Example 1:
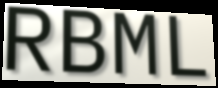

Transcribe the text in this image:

RBML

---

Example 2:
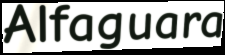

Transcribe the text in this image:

Alfaguara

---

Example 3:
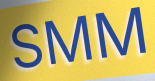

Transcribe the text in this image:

SMM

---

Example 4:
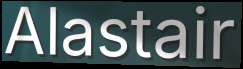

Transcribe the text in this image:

Alastair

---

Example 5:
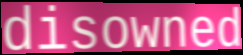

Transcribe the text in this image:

disowned